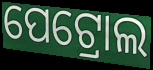
ପେଟ୍ରୋଲ